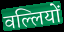
वल्लियों